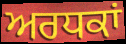
ਅਰਧਕਾਂ